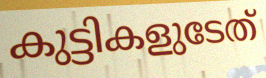
കുട്ടികളുടേത്